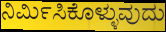
ನಿರ್ಮಿಸಿಕೊಳ್ಳುವುದು